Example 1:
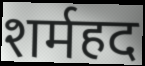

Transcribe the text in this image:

शर्महद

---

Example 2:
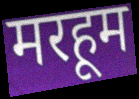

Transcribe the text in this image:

मरहूम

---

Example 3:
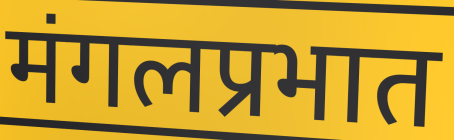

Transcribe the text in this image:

मंगलप्रभात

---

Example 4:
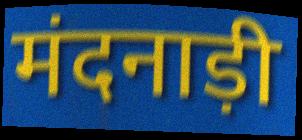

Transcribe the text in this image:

मंदनाड़ी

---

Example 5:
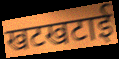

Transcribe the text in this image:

खटखटाई